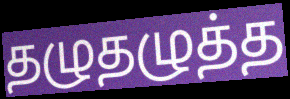
தழுதழுத்த